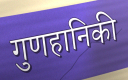
गुणहानिकी